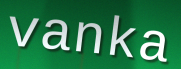
vanka